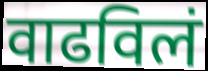
वाढविलं